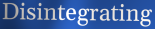
Disintegrating